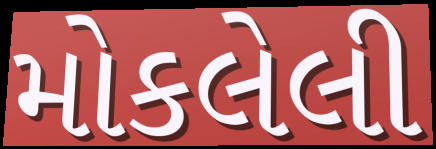
મોકલેલી